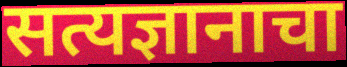
सत्यज्ञानाचा